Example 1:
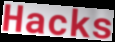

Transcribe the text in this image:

Hacks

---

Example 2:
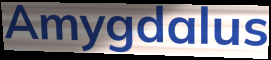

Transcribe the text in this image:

Amygdalus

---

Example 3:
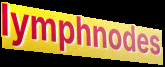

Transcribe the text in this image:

lymphnodes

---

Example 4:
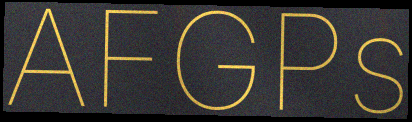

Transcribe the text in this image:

AFGPs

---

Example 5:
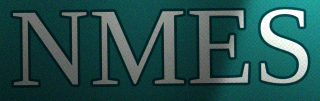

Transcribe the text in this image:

NMES